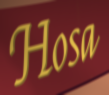
Hosa